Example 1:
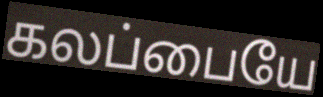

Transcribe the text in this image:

கலப்பையே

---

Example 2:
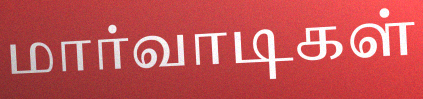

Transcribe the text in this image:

மார்வாடிகள்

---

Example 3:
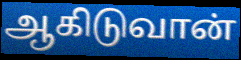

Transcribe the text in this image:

ஆகிடுவான்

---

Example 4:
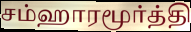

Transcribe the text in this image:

சம்ஹாரமூர்த்தி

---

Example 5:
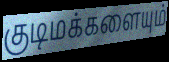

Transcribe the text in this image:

குடிமக்களையும்